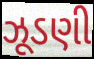
ઝૂડણી